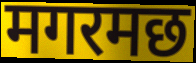
मगरमछ